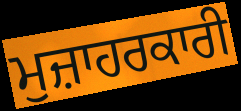
ਮੁਜ਼ਾਹਰਕਾਰੀ